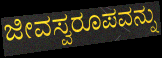
ಜೀವಸ್ವರೂಪವನ್ನು